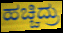
ಹಚ್ಚಿದ್ರು